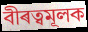
বীৰত্বমূলক